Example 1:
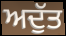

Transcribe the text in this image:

ਅਦੁੱਤ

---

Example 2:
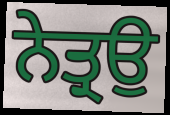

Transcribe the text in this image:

ਨੇਤ੍ਰਉ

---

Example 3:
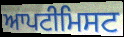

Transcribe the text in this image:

ਆਪਟੀਮਿਸਟ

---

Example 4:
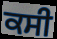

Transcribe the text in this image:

ਕਸੀ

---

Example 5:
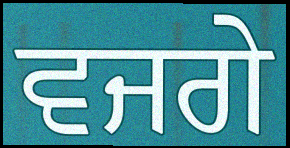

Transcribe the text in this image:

ਵਜਗੇ